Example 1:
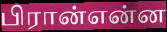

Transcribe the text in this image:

பிரான்என்ன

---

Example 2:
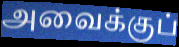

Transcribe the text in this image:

அவைக்குப்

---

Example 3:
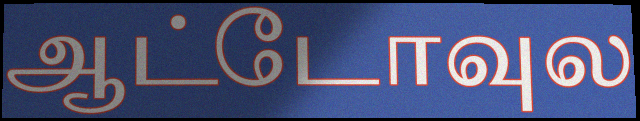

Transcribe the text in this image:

ஆட்டோவுல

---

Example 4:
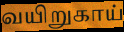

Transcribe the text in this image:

வயிறுகாய்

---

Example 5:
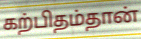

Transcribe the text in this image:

கற்பிதம்தான்